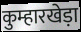
कुम्हारखेड़ा